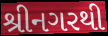
શ્રીનગરથી